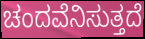
ಚಂದವೆನಿಸುತ್ತದೆ